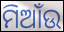
ମିଆଁଉ